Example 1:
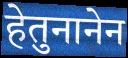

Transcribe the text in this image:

हेतुनानेन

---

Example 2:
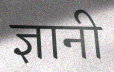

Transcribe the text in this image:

ज्ञानी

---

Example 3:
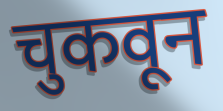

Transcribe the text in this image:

चुकवून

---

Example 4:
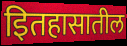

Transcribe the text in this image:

इितहासातील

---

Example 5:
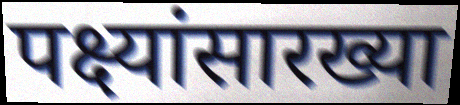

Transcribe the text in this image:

पक्ष्यांसारख्या